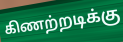
கிணற்றடிக்கு